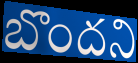
బొందని